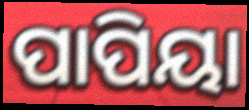
ପାପିୟା